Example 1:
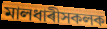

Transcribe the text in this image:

মালধাৰীসকলক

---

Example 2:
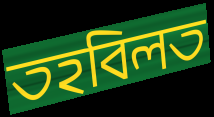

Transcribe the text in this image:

তহবিলত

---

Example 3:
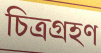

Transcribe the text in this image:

চিত্ৰগ্ৰহণ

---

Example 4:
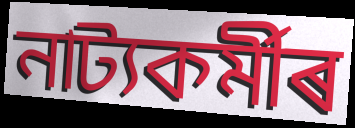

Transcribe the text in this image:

নাট্যকৰ্মীৰ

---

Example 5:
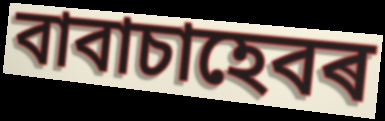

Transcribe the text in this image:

বাবাচাহেবৰ